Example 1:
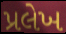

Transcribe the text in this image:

પ્રલેખ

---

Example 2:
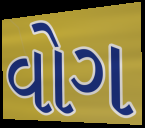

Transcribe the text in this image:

વોગ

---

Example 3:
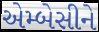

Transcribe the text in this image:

એમ્બેસીને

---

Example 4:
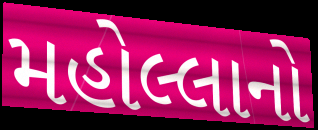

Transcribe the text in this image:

મહોલ્લાનો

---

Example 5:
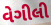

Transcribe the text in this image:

વેગીલી